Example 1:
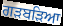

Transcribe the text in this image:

ਗੜਬੜਿਆ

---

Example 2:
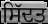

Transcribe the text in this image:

ਸਿੱਦਤ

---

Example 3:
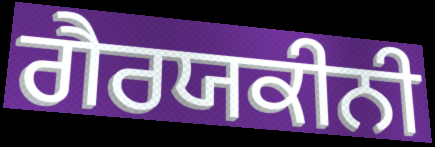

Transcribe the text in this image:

ਗੈਰਯਕੀਨੀ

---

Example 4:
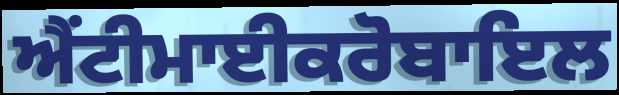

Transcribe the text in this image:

ਐਂਟੀਮਾਈਕਰੋਬਾਇਲ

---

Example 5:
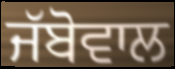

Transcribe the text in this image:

ਜੱਬੋਵਾਲ